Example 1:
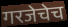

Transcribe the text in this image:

गरजेचेच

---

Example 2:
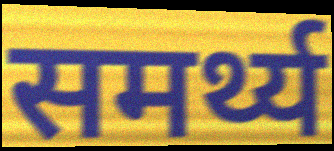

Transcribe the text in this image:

समर्थ्य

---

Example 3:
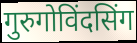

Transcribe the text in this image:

गुरुगोविंदसिंग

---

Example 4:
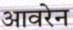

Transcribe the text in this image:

आवरेन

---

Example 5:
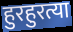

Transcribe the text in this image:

हुरहुरत्या